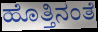
ಹೊತ್ತಿನಂತೆ